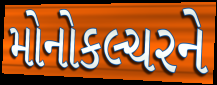
મોનોકલ્ચરને